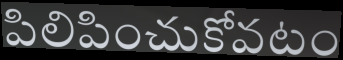
పిలిపించుకోవటం